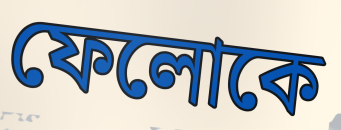
ফেলোকে